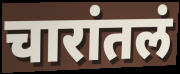
चारांतलं